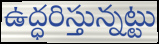
ఉద్ధరిస్తున్నట్టు